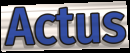
Actus